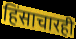
हिंसाचारही